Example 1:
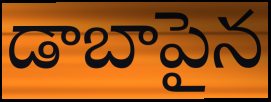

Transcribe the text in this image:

డాబాపైన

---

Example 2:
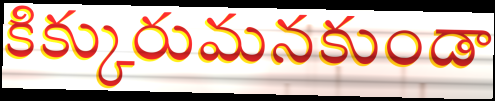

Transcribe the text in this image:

కిక్కురుమనకుండా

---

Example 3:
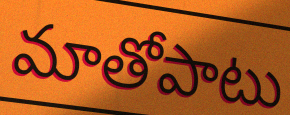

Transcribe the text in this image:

మాతోపాటు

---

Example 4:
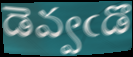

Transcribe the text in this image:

డెవ్వఁడొ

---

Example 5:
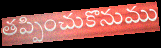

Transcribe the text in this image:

తప్పించుకొనుము